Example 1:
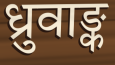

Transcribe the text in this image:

ध्रुवाङ्क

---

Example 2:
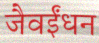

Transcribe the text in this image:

जैवईंधन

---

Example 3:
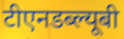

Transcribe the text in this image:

टीएनडब्ल्यूबी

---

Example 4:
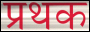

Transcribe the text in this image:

प्रथक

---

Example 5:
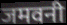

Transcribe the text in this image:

जमवनी